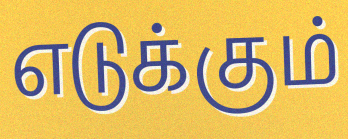
எடுக்கும்